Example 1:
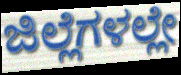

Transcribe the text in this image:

ಜಿಲ್ಲೆಗಳಲ್ಲೇ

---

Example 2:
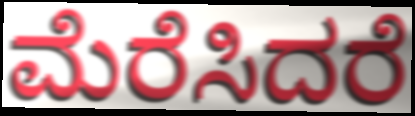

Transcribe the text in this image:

ಮೆರೆಸಿದರೆ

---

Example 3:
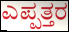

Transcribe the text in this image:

ಎಪ್ಪತ್ತರ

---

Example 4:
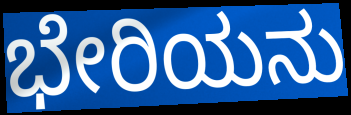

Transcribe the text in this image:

ಭೇರಿಯನು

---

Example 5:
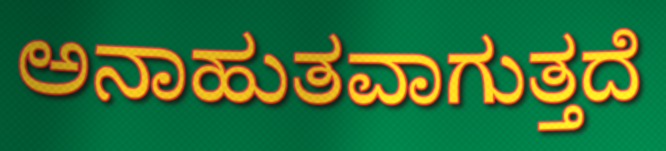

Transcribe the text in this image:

ಅನಾಹುತವಾಗುತ್ತದೆ